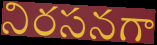
నిరసనగా